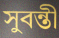
সুবন্তী